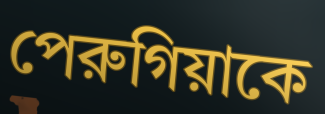
পেরুগিয়াকে